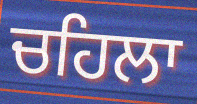
ਚਹਿਲਾ